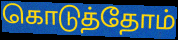
கொடுத்தோம்